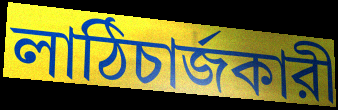
লাঠিচার্জকারী